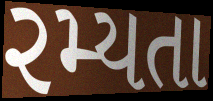
રમ્યતા